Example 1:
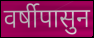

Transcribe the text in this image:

वर्षीपासुन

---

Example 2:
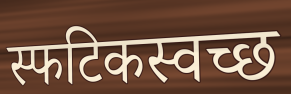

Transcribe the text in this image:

स्फटिकस्वच्छ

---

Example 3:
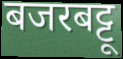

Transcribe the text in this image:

बजरबट्टू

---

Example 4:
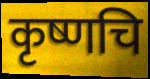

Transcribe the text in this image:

कृष्णचि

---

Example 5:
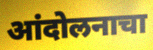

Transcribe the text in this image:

आंदोलनाचा